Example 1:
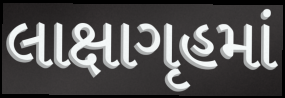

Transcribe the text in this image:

લાક્ષાગૃહમાં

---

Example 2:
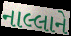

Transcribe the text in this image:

નાલ્લાને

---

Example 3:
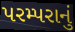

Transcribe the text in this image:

પરમ્પરાનું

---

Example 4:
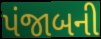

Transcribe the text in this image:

પંજાબની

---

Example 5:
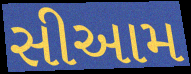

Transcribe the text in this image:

સીઆમ